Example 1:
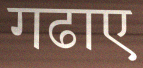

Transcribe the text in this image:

गढाए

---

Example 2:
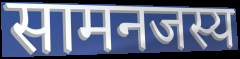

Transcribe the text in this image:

सामनजस्य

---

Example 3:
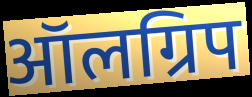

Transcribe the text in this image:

ऑलग्रिप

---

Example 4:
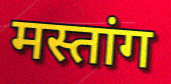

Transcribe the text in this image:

मस्तांग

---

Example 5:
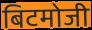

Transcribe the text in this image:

बिटमोजी